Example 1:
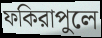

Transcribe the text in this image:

ফকিরাপুলে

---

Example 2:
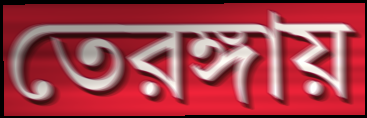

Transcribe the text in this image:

তেরঙ্গায়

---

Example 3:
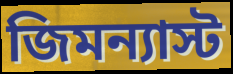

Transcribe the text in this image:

জিমন্যাস্ট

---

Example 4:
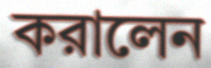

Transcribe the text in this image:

করালেন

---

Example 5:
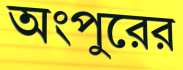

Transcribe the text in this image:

অংপুরের